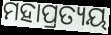
ମହାପ୍ରତ୍ୟୟ